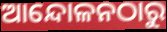
ଆନ୍ଦୋଳନଠାରୁ